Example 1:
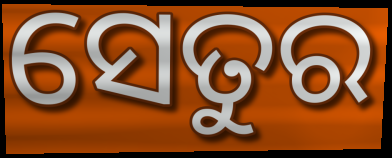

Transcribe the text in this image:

ସେତୁର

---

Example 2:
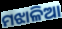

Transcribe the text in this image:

ମଝାଳିଆ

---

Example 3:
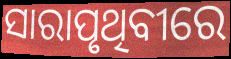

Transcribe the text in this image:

ସାରାପୃଥିବୀରେ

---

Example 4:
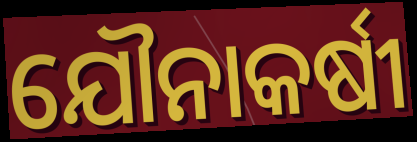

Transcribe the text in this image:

ଯୌନାକର୍ଷୀ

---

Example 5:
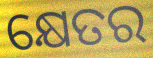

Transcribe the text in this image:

କ୍ଷେତର